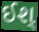
ઈશ્